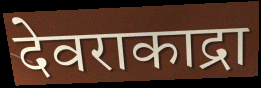
देवराकाद्रा